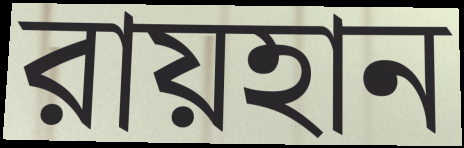
রায়হান